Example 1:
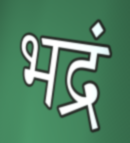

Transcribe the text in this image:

भद्रं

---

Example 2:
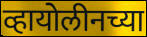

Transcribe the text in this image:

व्हायोलीनच्या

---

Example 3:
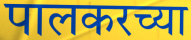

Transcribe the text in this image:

पालकरच्या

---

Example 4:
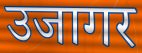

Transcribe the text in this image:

उजागर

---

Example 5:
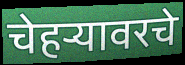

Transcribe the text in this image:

चेहऱ्यावरचे